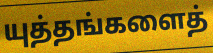
யுத்தங்களைத்